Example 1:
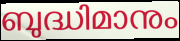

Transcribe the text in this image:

ബുദ്ധിമാനും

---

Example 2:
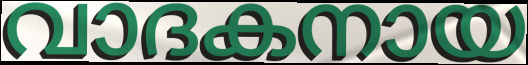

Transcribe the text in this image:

വാദകനായ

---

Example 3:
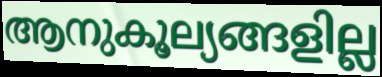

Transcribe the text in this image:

ആനുകൂല്യങ്ങളില്ല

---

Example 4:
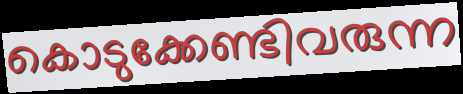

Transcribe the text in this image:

കൊടുക്കേണ്ടിവരുന്ന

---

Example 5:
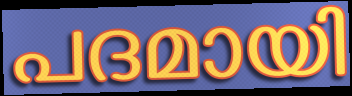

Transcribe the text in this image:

പദമായി